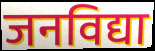
जनविद्या